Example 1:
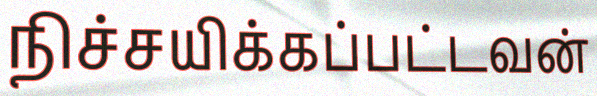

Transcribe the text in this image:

நிச்சயிக்கப்பட்டவன்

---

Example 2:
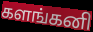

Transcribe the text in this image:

களங்கனி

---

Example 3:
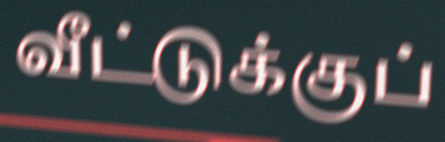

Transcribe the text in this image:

வீட்டுக்குப்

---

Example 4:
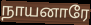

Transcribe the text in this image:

நாயனாரே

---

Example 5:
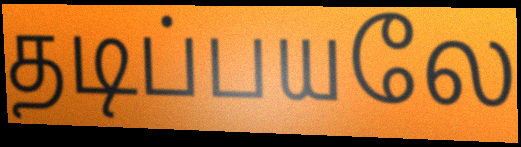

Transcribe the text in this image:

தடிப்பயலே